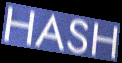
HASH